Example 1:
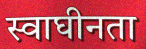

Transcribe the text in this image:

स्वाघीनता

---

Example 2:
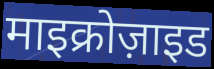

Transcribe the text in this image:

माइक्रोज़ाइड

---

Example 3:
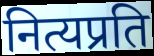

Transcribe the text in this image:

नित्यप्रति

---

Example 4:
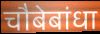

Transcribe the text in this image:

चौबेबांधा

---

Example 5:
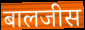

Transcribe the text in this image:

बालजीस